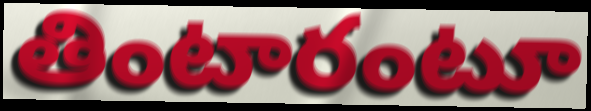
తింటారంటూ